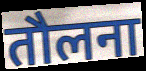
तौलना